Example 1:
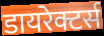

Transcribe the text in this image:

डायरेक्टर्स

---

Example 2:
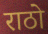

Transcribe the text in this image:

राठो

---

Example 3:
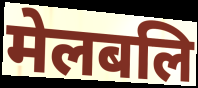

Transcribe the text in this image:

मेलबलि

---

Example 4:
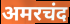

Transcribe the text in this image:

अमरचंद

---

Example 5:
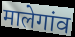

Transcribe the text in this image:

मालेगांव